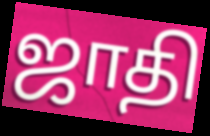
ஜாதி